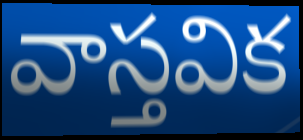
వాస్తవిక